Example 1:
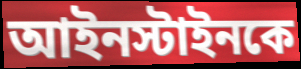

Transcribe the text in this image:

আইনস্টাইনকে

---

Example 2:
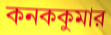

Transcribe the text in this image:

কনককুমার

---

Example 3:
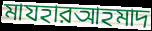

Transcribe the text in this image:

মাযহারআহমাদ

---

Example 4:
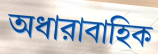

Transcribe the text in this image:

অধারাবাহিক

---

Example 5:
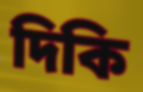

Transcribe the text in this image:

দিকি